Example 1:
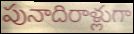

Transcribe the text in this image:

పునాదిరాళ్లుగా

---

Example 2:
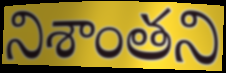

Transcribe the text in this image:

నిశాంతని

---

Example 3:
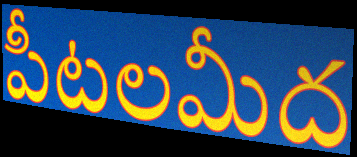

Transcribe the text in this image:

పీటలమీద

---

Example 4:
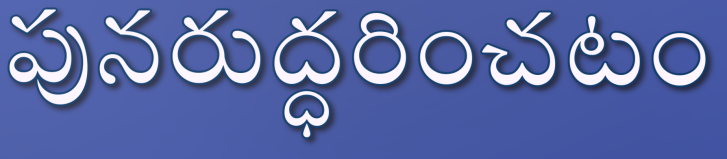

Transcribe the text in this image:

పునరుద్ధరించటం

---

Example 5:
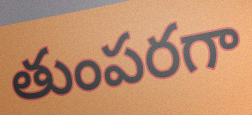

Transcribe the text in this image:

తుంపరగా